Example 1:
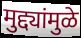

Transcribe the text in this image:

मुद्द्यांमुळे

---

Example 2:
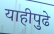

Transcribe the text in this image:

याहीपुढे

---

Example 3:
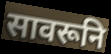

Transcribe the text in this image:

सावरूनि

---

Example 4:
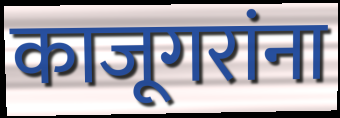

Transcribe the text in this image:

काजूगरांना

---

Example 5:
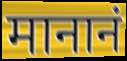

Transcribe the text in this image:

मानानं